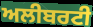
ਅਲੀਬਰਟੀ